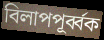
বিলাপপূর্ব্বক